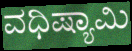
ವಧಿಷ್ಯಾಮಿ